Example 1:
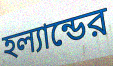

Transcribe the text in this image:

হল্যান্ডের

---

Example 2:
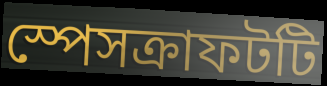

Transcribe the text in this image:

স্পেসক্রাফটটি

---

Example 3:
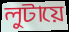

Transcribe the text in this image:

লুটায়ে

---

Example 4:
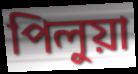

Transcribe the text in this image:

পিলুয়া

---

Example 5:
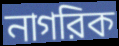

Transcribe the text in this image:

নাগরিক